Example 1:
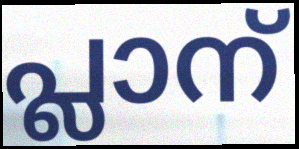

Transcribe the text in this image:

പ്ലാന്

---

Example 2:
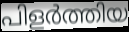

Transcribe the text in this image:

പിളർത്തിയ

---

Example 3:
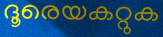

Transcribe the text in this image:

ദൂരെയകറ്റുക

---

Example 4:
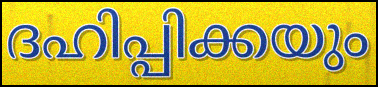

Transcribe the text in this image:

ദഹിപ്പിക്കയും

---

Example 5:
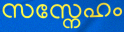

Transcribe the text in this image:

സസ്നേഹം